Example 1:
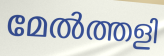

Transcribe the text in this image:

മേൽത്തളി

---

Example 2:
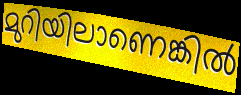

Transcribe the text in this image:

മുറിയിലാണെങ്കിൽ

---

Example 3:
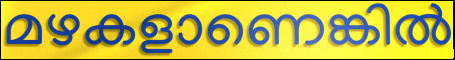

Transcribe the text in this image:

മഴകളാണെങ്കിൽ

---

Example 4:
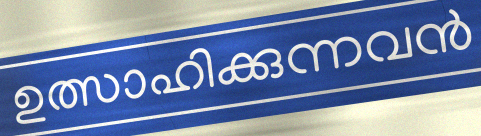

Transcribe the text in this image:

ഉത്സാഹിക്കുന്നവൻ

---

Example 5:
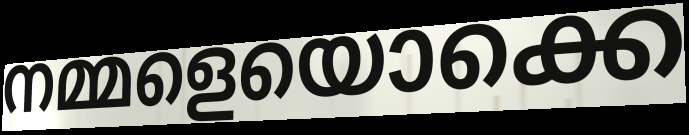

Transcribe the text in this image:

നമ്മളെയൊക്കെ